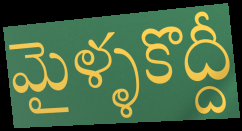
మైళ్ళకొద్దీ